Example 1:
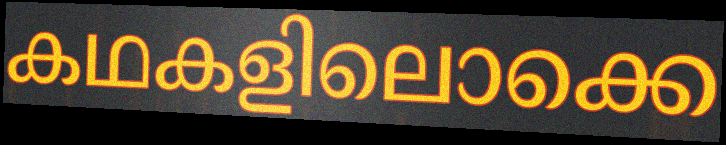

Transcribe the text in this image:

കഥകളിലൊക്കെ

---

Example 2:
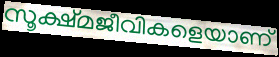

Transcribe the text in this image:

സൂക്ഷ്മജീവികളെയാണ്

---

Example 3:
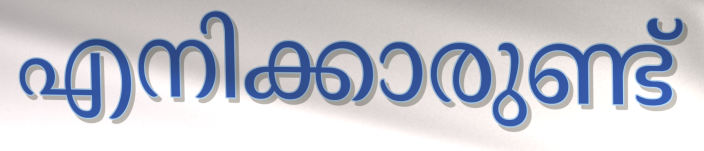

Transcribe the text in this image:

എനിക്കാരുണ്ട്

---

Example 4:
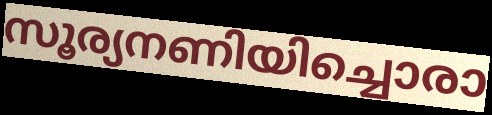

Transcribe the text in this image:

സൂര്യനണിയിച്ചൊരാ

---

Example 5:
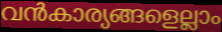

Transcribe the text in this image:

വൻകാര്യങ്ങളെല്ലാം